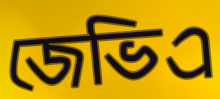
জেভিএ